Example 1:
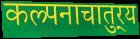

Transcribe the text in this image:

कल्पनाचातुर्य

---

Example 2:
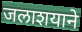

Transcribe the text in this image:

जलाशयाने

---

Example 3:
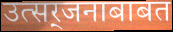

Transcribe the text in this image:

उत्सर्जनाबाबत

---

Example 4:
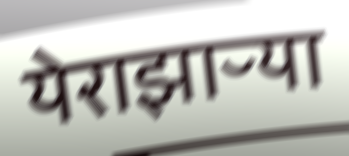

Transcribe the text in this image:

येराझाऱ्या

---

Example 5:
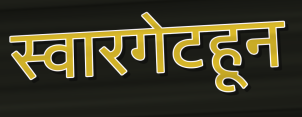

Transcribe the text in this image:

स्वारगेटहून